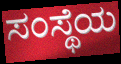
ಸಂಸ್ಥೆಯ